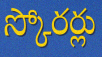
స్కోరర్లు